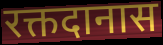
रक्तदानास